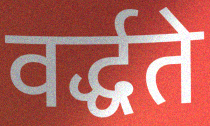
वर्द्धते